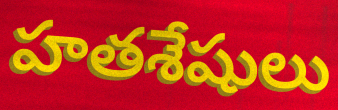
హతశేషులు